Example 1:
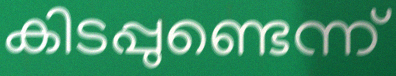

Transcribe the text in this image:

കിടപ്പുണ്ടെന്ന്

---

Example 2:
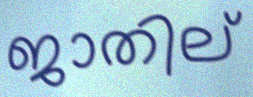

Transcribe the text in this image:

ജാതില്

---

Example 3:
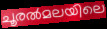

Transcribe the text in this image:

ചൂരൽമലയിലെ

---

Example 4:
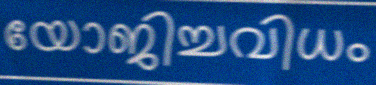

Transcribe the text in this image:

യോജിച്ചവിധം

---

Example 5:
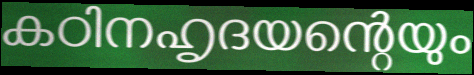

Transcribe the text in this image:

കഠിനഹൃദയന്റെയും